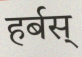
हर्बस्